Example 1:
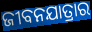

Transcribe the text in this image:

ଜୀବନଯାତ୍ରାର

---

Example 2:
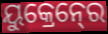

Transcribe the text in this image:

ୟୁକ୍ରେନ୍‍ରେ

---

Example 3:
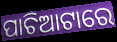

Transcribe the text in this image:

ପାଚିଆଟାରେ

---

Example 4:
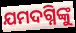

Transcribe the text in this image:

ଯମଦଗ୍ନିଙ୍କୁ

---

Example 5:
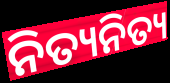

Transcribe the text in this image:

ନିତ୍ୟନିତ୍ୟ